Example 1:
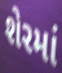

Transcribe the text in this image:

શેરમાં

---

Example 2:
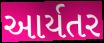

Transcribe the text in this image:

આર્યતર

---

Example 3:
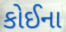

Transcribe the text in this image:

કોઈના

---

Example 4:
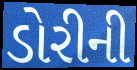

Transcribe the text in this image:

ડોરીની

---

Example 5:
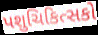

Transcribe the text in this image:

પશુચિકિત્સકો